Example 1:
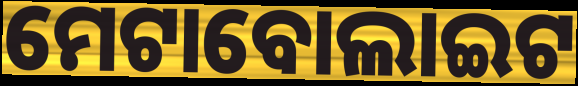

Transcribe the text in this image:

ମେଟାବୋଲାଇଟ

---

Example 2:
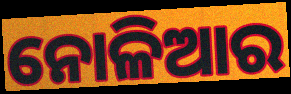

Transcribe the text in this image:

ନୋଳିଆର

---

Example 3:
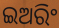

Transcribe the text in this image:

ଇଅରିଂ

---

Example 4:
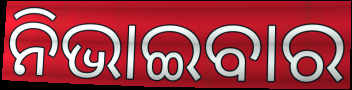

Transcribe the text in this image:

ନିଭାଇବାର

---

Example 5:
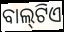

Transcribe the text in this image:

ବାଲ୍‍ଟିଏ